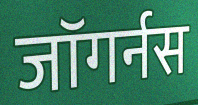
जॉगर्नस